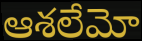
ఆశలేమో